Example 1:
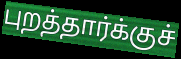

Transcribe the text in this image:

புறத்தார்க்குச்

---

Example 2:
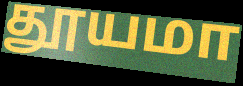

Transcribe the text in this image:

தூயமா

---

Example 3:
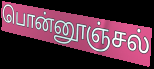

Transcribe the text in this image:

பொன்னூஞ்சல்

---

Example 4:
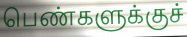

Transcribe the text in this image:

பெண்களுக்குச்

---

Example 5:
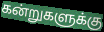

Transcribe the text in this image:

கன்றுகளுக்கு